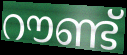
റൗണ്ട്